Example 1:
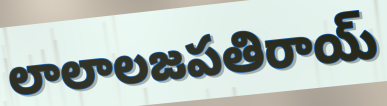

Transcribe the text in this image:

లాలాలజపతిరాయ్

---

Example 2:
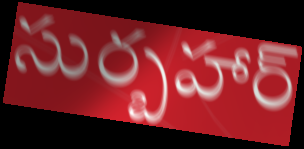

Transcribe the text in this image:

సుర్బహార్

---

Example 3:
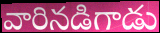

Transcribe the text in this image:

వారినడిగాడు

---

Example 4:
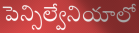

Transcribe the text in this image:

పెన్సిల్వేనియాలో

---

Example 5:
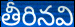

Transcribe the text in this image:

తీరినవి